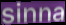
sinna